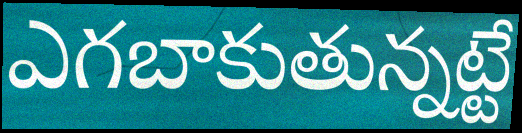
ఎగబాకుతున్నట్టే